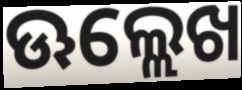
ଊଲ୍ଲେଖ